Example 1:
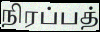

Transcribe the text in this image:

நிரப்பத்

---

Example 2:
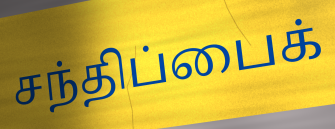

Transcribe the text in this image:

சந்திப்பைக்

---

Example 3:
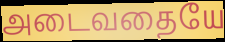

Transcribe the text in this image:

அடைவதையே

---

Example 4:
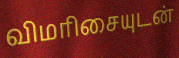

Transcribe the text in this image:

விமரிசையுடன்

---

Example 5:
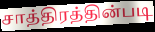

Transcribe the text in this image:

சாத்திரத்தின்படி